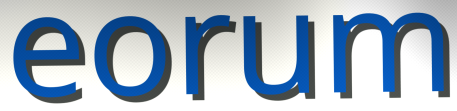
eorum